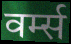
वर्म्स